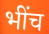
भींच